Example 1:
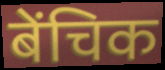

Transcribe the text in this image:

बेंचिक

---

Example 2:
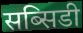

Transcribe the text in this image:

सब्सिडी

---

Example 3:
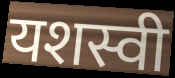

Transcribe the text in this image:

यशस्‍वी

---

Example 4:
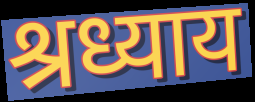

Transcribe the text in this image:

श्रध्याय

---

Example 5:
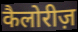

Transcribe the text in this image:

कैलोरीज़